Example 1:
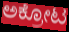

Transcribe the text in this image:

ಅಕ್ರೋಟ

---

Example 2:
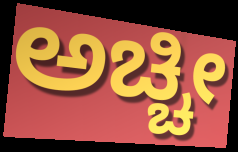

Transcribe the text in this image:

ಅಚ್ಚೀ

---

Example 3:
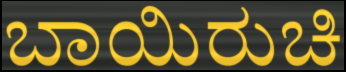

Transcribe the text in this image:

ಬಾಯಿರುಚಿ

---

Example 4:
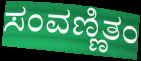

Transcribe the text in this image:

ಸಂವಣ್ಣಿತಂ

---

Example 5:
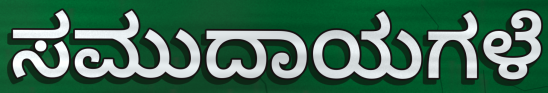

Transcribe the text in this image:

ಸಮುದಾಯಗಳೆ